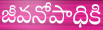
జీవనోపాధికి